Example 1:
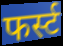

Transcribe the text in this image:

फर्स्ट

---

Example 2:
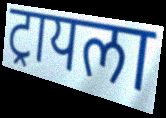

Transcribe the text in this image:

ट्रायला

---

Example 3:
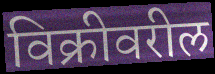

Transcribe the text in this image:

विक्रीवरील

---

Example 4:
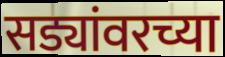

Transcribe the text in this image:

सड्यांवरच्या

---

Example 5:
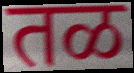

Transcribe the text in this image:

तळ